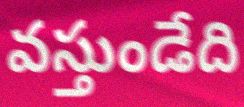
వస్తుండేది